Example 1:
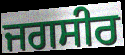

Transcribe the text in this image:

ਜਗਸੀਰ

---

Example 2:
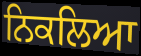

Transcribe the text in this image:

ਨਿਕਲਿਆ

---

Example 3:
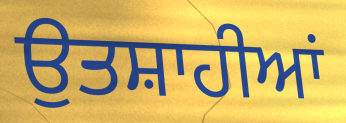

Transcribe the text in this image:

ਉਤਸ਼ਾਹੀਆਂ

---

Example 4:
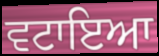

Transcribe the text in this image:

ਵਟਾਇਆ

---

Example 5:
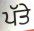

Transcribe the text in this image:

ਪੱਤੇ